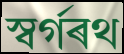
স্বৰ্গৰথ